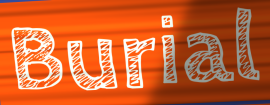
Burial